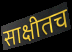
साक्षीतच